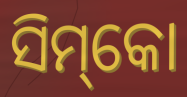
ସିମ୍‌କୋ